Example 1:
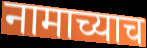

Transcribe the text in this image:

नामाच्याच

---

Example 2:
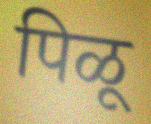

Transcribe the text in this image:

पिळू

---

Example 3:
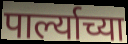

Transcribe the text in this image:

पार्ल्याच्या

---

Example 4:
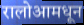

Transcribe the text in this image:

रालोआमधून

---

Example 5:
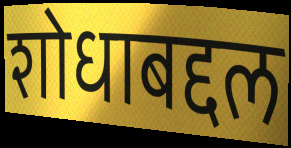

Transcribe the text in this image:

शोधाबद्दल